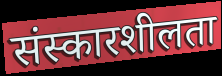
संस्कारशीलता